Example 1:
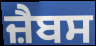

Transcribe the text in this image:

ਜ਼ੈਬਸ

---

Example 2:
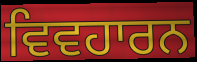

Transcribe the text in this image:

ਵਿਵਹਾਰਨ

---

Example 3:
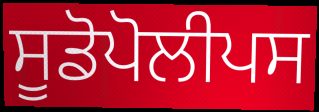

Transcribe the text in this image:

ਸੂਡੋਪੋਲੀਪਸ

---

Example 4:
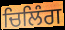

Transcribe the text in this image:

ਚਿਲਿੰਗ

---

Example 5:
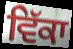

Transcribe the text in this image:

ਵਿੱਕਾ